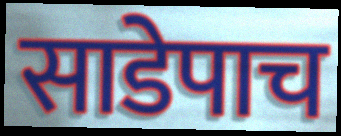
साडेपाच